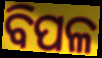
ବିପଳ